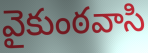
వైకుంఠవాసి